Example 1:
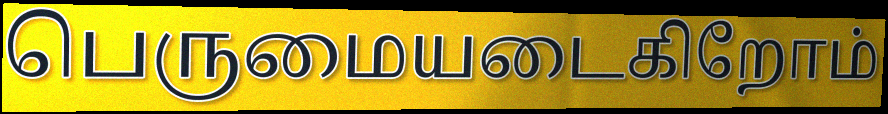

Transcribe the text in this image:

பெருமையடைகிறோம்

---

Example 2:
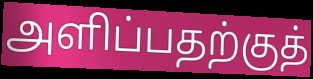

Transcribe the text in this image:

அளிப்பதற்குத்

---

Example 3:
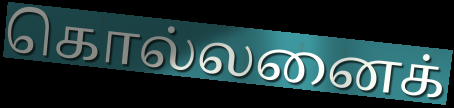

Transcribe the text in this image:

கொல்லனைக்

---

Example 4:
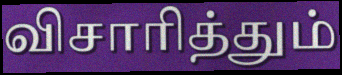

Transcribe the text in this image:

விசாரித்தும்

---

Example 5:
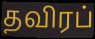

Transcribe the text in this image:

தவிரப்